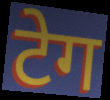
टेग